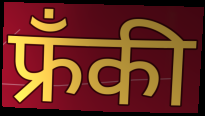
फ्रँकी